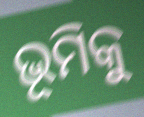
ଭୂମିକୁ